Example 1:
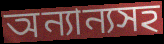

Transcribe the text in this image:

অন্যান্যসহ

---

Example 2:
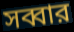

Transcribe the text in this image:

সব্বার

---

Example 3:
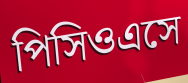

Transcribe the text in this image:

পিসিওএসে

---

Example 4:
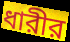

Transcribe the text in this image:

ধারীর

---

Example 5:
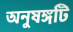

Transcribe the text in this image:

অনুষঙ্গটি